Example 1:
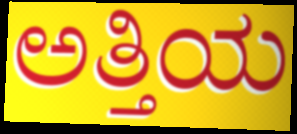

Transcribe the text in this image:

ಅತ್ತಿಯ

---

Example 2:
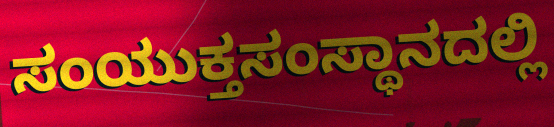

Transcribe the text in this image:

ಸಂಯುಕ್ತಸಂಸ್ಥಾನದಲ್ಲಿ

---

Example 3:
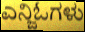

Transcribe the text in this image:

ಎನ್ಜಿಓಗಳು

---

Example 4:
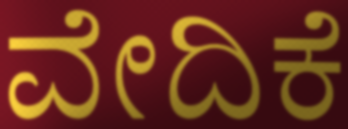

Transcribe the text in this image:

ವೇದಿಕೆ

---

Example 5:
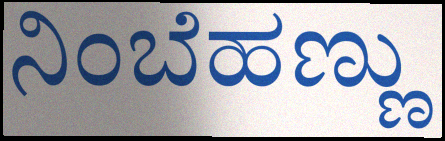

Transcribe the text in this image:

ನಿಂಬೆಹಣ್ಣು